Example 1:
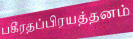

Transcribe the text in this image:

பகீரதப்பிரயத்தனம்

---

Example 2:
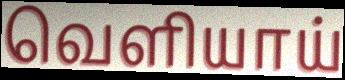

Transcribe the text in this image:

வெளியாய்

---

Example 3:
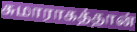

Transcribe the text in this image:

சுமாராகத்தான்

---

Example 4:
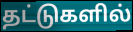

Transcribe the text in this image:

தட்டுகளில்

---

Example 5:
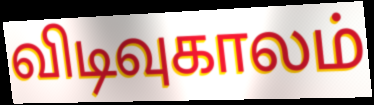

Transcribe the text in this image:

விடிவுகாலம்